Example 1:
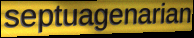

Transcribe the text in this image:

septuagenarian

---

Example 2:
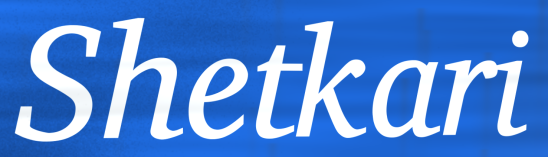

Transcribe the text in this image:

Shetkari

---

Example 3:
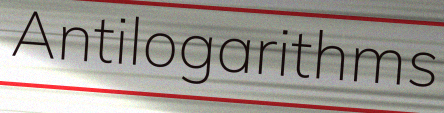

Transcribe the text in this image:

Antilogarithms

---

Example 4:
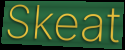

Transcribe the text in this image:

Skeat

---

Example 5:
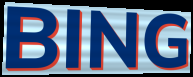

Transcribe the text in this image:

BING